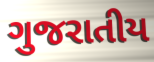
ગુજરાતીય